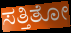
ಸತ್ತಿತೋ